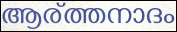
ആര്ത്തനാദം